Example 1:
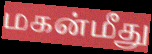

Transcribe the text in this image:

மகன்மீது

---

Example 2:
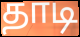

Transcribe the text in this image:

தாடி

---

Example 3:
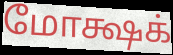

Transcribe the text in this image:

மோக்ஷக்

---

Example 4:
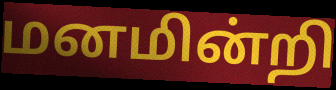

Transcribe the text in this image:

மனமின்றி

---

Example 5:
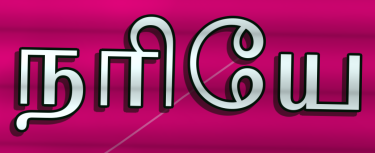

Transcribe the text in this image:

நரியே